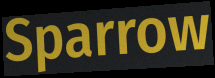
Sparrow